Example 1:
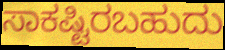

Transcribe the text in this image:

ಸಾಕಷ್ಟಿರಬಹುದು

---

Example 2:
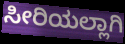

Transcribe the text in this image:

ಸೀರಿಯಲ್ಲಾಗಿ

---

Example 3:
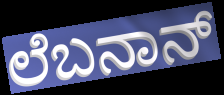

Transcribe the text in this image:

ಲೆಬನಾನ್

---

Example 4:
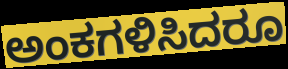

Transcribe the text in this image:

ಅಂಕಗಳಿಸಿದರೂ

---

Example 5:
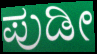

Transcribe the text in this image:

ಪುಡೀ